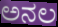
ಅನಲ